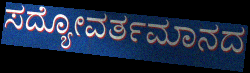
ಸದ್ಯೋವರ್ತಮಾನದ